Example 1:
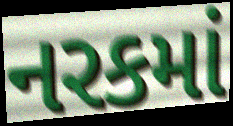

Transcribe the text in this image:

નરકમાં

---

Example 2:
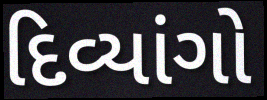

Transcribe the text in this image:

દિવ્યાંગો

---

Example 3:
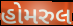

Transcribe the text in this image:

હોમરુલ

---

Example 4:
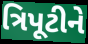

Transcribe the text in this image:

ત્રિપૂટીને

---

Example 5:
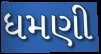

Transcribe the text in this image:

ધમણી